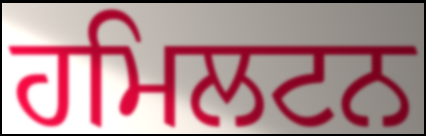
ਹਮਿਲਟਨ